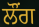
ਲੌਂਗ